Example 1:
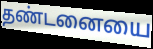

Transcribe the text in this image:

தண்டனையை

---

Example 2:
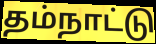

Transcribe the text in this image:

தம்நாட்டு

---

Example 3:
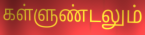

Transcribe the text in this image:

கள்ளுண்டலும்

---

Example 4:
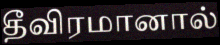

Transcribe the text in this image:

தீவிரமானால்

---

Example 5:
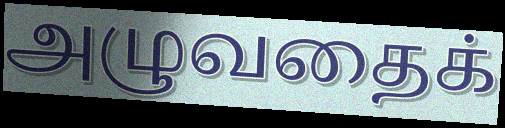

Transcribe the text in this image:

அழுவதைக்